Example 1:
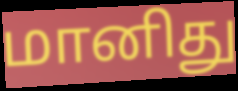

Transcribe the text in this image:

மானிது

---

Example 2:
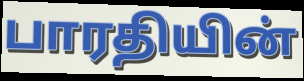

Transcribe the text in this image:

பாரதியின்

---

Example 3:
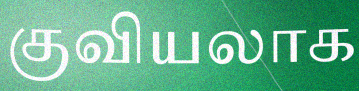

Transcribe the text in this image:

குவியலாக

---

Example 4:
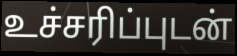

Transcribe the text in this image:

உச்சரிப்புடன்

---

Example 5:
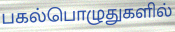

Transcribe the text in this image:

பகல்பொழுதுகளில்